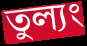
তুল্যং